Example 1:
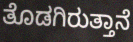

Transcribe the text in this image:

ತೊಡಗಿರುತ್ತಾನೆ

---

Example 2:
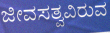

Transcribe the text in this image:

ಜೀವಸತ್ವವಿರುವ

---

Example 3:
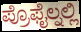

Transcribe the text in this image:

ಪ್ರೊಫೈಲ್ನಲ್ಲಿ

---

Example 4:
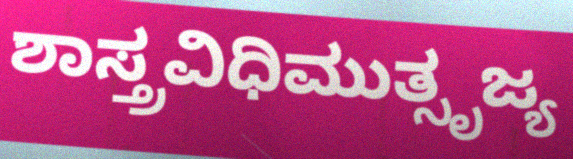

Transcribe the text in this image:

ಶಾಸ್ತ್ರವಿಧಿಮುತ್ಸೃಜ್ಯ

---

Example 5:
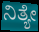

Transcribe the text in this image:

ನಿತ್ಯೇ